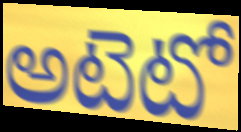
అటెటో